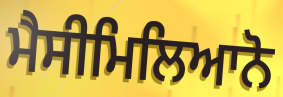
ਮੈਸੀਮਿਲਿਆਨੋ